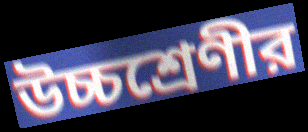
উচ্চশ্রেণীর